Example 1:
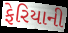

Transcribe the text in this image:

ફેરિયાની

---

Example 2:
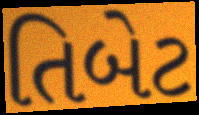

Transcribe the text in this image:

તિબેટ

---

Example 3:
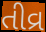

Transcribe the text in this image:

તીવ્ર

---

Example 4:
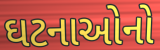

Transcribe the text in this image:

ઘટનાઓનો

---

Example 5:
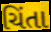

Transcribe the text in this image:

ચિંતા